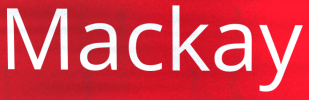
Mackay